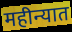
महीन्यात